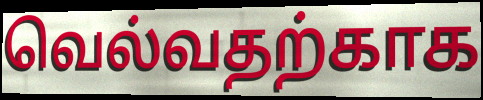
வெல்வதற்காக